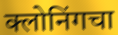
क्लोनिंगचा